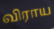
விராய